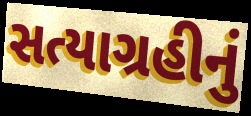
સત્યાગ્રહીનું